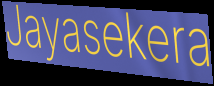
Jayasekera